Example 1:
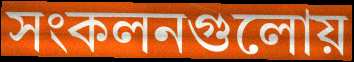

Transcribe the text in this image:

সংকলনগুলোয়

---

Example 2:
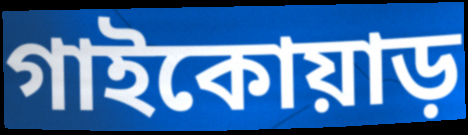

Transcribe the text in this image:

গাইকোয়াড়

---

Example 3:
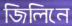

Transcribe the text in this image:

জিলিনে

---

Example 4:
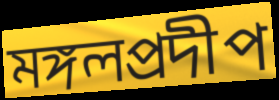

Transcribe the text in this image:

মঙ্গলপ্রদীপ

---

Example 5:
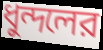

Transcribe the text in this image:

ধুন্দলের